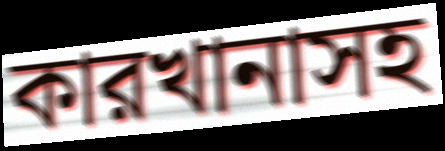
কারখানাসহ